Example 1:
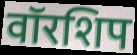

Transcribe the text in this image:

वॉरशिप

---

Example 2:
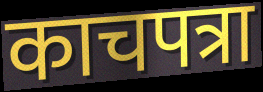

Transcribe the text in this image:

काचपत्रा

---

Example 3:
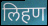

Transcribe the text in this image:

लिहण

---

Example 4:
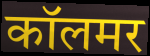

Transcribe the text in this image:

कॉलमर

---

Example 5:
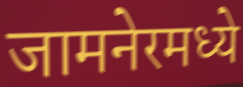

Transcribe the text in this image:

जामनेरमध्ये